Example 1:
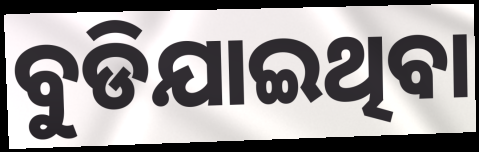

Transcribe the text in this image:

ବୁଡିଯାଇଥିବା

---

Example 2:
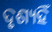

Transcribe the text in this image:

ଦୃଶ୍ୟହିଁ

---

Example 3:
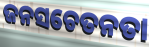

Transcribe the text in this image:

ଜନସଚେତନତା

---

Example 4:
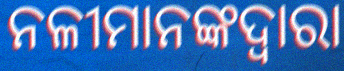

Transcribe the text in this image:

ନଳୀମାନଙ୍କଦ୍ୱାରା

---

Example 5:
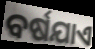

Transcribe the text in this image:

ବର୍ଷଯାଏ